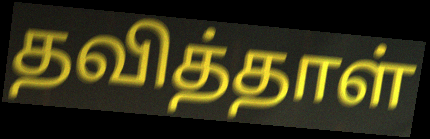
தவித்தாள்